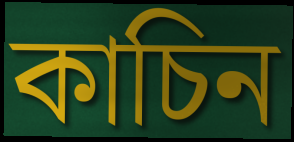
কাচিন